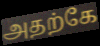
அதற்கே